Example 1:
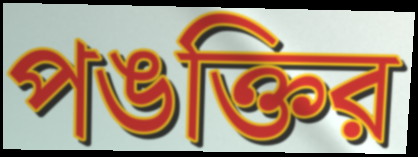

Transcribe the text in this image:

পঙক্তির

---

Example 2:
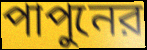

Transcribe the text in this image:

পাপুনের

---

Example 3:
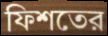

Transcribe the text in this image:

ফিশতের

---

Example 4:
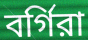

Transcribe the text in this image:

বর্গিরা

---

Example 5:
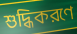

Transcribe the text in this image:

শুদ্ধিকরণে